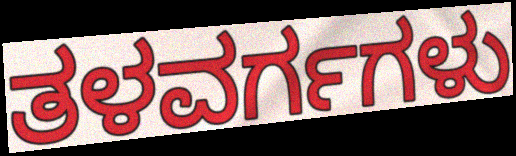
ತಳವರ್ಗಗಳು